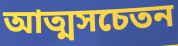
আত্মসচেতন